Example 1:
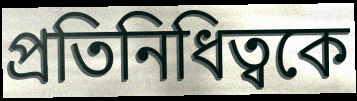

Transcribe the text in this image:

প্রতিনিধিত্বকে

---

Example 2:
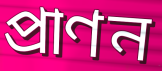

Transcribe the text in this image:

প্রাণন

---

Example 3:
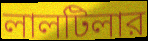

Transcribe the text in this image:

লালটিলার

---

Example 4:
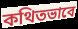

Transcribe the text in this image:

কথিতভাবে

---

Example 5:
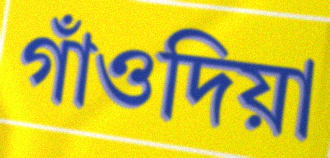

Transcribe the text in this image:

গাঁওদিয়া